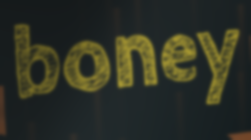
boney